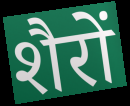
शैरों